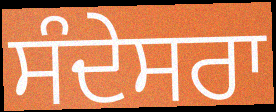
ਸੰਦੇਸਰਾ